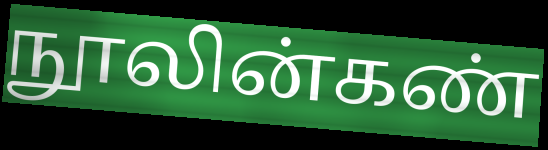
நூலின்கண்